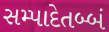
સમ્પાદેતબ્બં